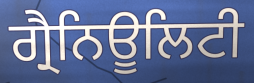
ਗ੍ਰੈਨਿਊਲਿਟੀ